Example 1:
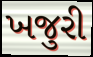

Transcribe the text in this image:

ખજુરી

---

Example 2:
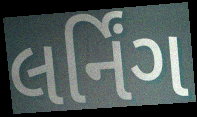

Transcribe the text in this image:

લર્નિંગ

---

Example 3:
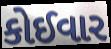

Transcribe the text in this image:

કોઈવાર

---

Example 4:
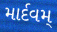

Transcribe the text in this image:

માર્દવમ્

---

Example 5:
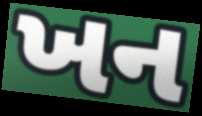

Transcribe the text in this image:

ખન